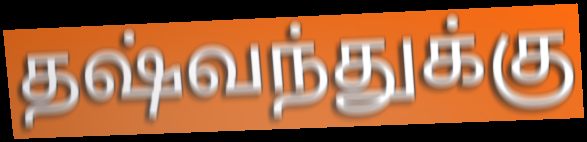
தஷ்வந்துக்கு